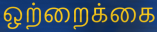
ஒற்றைக்கை